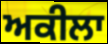
ਅਕੀਲਾ